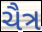
ચૈત્ર